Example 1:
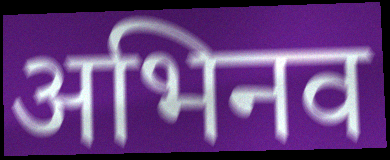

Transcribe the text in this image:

अभिनव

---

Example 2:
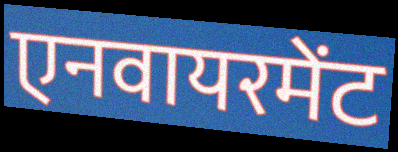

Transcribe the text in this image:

एनवायरमेंट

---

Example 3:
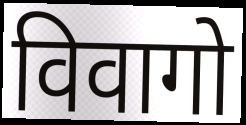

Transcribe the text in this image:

विवागो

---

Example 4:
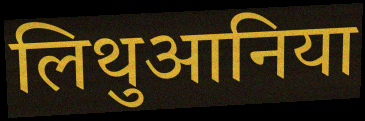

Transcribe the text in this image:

लिथुआनिया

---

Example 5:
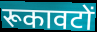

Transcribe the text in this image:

रूकावटों